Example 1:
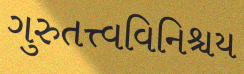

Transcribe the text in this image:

ગુરુતત્ત્વવિનિશ્ચય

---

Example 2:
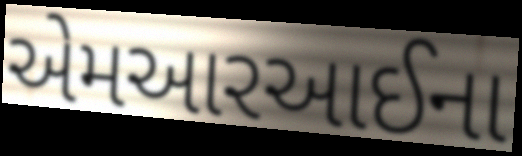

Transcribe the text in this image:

એમઆરઆઈના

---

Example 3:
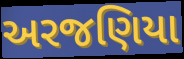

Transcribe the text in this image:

અરજણિયા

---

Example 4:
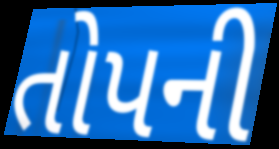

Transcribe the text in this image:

તોપની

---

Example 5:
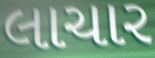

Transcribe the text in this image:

લાચાર